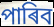
পাৰিব